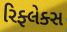
રિફ્લેક્સ